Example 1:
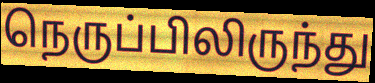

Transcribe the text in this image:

நெருப்பிலிருந்து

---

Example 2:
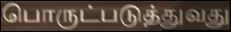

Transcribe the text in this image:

பொருட்படுத்துவது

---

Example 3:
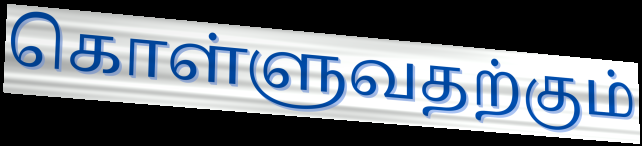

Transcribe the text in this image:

கொள்ளுவதற்கும்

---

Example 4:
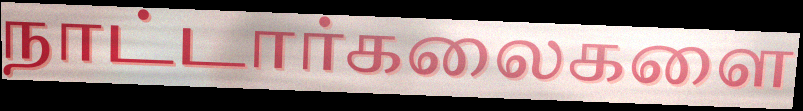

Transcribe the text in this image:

நாட்டார்கலைகளை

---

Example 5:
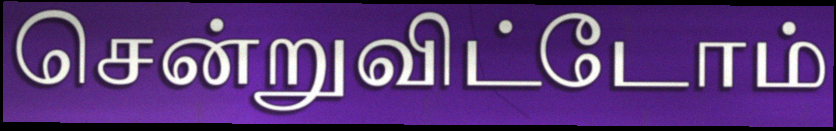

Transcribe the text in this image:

சென்றுவிட்டோம்